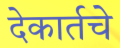
देकार्तचे